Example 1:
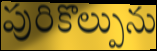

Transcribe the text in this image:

పురికొల్పును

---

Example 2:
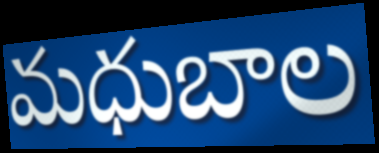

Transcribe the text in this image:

మధుబాల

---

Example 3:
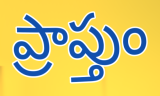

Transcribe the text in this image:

ప్రాప్తుం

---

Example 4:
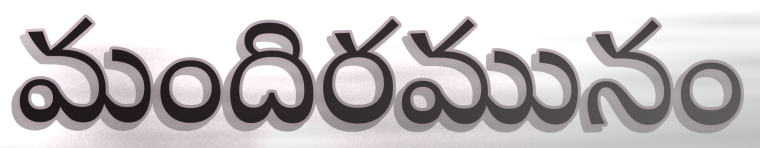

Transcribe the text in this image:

మందిరమునం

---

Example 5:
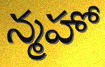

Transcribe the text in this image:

న్మహో